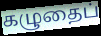
கழுதைப்